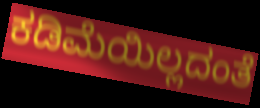
ಕಡಿಮೆಯಿಲ್ಲದಂತೆ